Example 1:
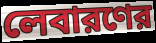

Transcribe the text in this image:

লেবারণের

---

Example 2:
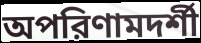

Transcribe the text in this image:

অপরিণামদর্শী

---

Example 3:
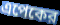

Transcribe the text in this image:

এপেকের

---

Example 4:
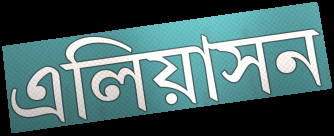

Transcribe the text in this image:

এলিয়াসন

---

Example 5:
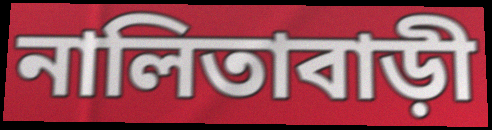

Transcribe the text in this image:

নালিতাবাড়ী